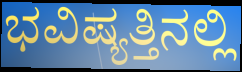
ಭವಿಷ್ಯತ್ತಿನಲ್ಲಿ